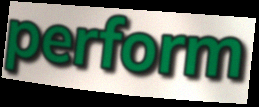
perform